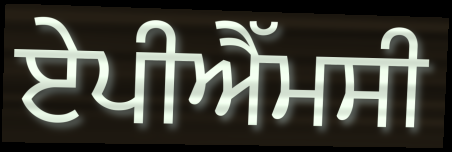
ਏਪੀਐੱਮਸੀ